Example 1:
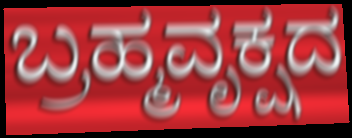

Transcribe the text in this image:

ಬ್ರಹ್ಮವೃಕ್ಷದ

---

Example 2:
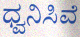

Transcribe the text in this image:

ಧ್ವನಿಸಿವೆ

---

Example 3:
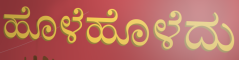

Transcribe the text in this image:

ಹೊಳೆಹೊಳೆದು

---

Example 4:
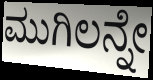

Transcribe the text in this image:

ಮುಗಿಲನ್ನೇ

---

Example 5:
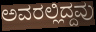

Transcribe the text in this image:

ಅವರಲ್ಲಿದ್ದವು